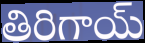
తిరిగాయ్